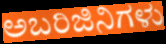
ಅಬರಿಜಿನಿಗಳು